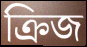
ক্রিজ